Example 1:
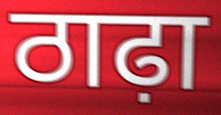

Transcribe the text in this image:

ठाढ़ा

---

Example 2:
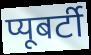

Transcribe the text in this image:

प्‍यूबर्टी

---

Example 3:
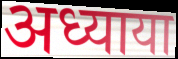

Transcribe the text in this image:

अध्याया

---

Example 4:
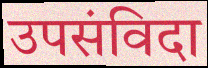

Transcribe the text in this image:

उपसंविदा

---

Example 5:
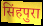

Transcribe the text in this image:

सिंहपुरा